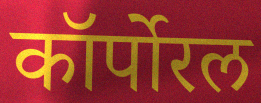
कॉर्पोरल